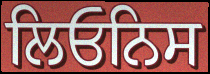
ਲਿਓਨਿਸ